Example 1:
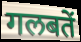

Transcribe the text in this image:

गलबतें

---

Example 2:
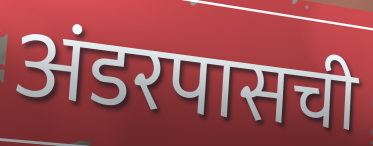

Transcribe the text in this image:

अंडरपासची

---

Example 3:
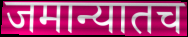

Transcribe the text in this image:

जमान्यातच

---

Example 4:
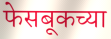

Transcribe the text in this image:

फेसबूकच्या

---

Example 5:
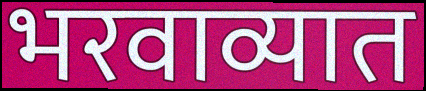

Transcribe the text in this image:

भरवाव्यात